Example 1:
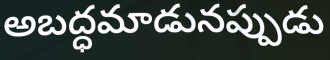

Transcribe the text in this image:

అబద్ధమాడునప్పుడు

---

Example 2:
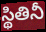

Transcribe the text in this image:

స్థితినీ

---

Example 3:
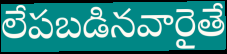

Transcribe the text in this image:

లేపబడినవారైతే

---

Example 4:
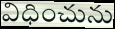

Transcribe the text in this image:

విధించును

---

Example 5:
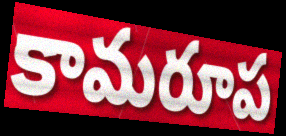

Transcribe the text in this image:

కామరూప